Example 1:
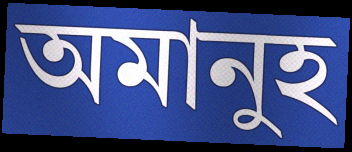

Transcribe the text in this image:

অমানুহ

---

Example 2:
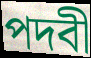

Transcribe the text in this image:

পদবী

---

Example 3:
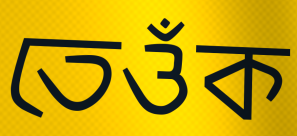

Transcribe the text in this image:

তেওঁক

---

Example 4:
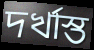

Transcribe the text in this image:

দৰ্খাস্ত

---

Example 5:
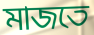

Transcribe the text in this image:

মাজতে